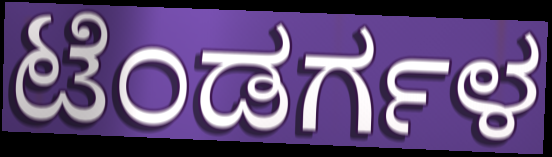
ಟೆಂಡರ್ಗಳ